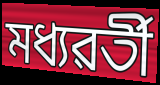
মধ্যৱৰ্তী